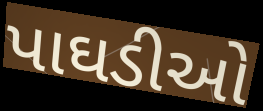
પાઘડીઓ